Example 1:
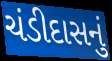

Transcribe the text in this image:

ચંડીદાસનું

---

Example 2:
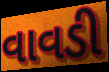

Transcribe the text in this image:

વાવડી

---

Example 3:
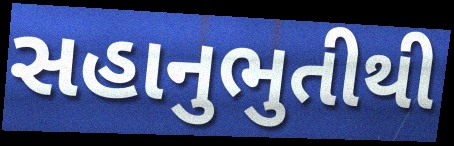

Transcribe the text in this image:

સહાનુભુતીથી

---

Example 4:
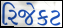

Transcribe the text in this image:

રિજેકટ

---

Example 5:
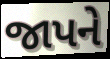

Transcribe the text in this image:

જાપને